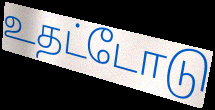
உதட்டோடு